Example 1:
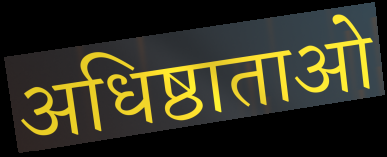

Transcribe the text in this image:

अधिष्ठाताओ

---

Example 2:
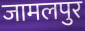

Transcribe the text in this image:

जामलपुर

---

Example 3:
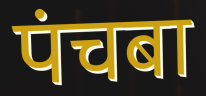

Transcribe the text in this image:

पंचबा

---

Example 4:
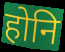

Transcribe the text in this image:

होनि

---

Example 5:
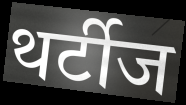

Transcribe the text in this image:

थर्टीज